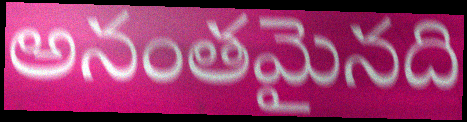
అనంతమైనది